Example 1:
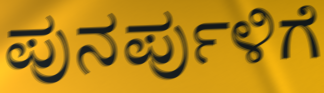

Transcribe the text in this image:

ಪುನರ್ಪುಳಿಗೆ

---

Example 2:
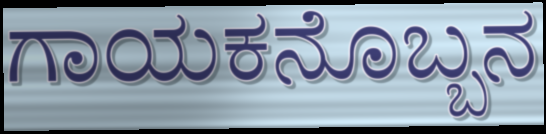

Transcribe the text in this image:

ಗಾಯಕನೊಬ್ಬನ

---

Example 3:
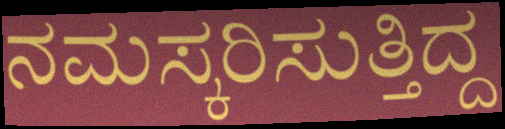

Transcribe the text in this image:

ನಮಸ್ಕರಿಸುತ್ತಿದ್ದ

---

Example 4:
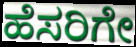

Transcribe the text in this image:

ಹೆಸರಿಗೇ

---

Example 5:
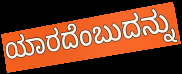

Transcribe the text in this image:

ಯಾರದೆಂಬುದನ್ನು